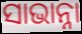
ସାଭାନ୍ନା